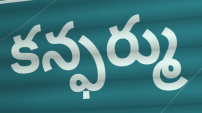
కన్ఫర్ము